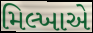
મિલ્ખાએ